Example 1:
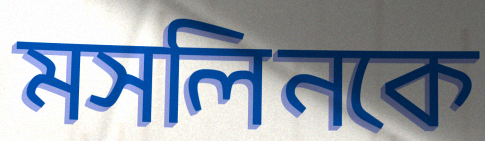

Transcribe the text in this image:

মসলিনকে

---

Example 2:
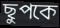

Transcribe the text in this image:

ছুপকে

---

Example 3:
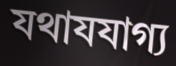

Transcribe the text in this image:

যথাযযাগ্য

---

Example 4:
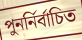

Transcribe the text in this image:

পুনর্নির্বাচিত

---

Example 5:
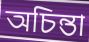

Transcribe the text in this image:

অচিন্তা